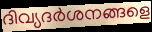
ദിവ്യദർശനങ്ങളെ